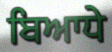
ਬਿਆਧੇ